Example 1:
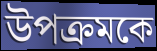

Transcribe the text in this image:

উপক্রমকে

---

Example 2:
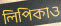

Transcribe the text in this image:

লিপিকাও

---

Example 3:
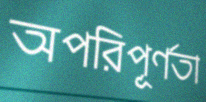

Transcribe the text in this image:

অপরিপূর্ণতা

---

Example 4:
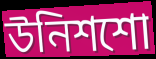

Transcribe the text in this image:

উনিশশো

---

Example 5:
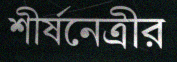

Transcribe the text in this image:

শীর্ষনেত্রীর